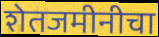
शेतजमीनीचा